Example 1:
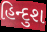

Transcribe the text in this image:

હિન્દુશ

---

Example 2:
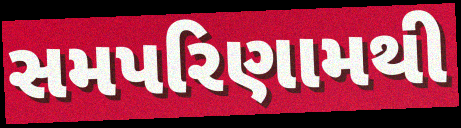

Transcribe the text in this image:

સમપરિણામથી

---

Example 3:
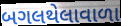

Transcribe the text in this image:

બગલથેલાવાળા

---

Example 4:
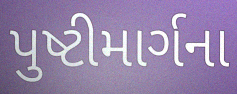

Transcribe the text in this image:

પુષ્ટીમાર્ગના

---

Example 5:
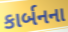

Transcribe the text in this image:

કાર્બનના